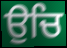
ਉਚਿ